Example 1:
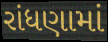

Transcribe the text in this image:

રાંધણામાં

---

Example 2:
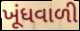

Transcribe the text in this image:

ખૂંધવાળી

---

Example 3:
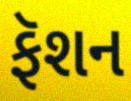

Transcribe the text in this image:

ફૅશન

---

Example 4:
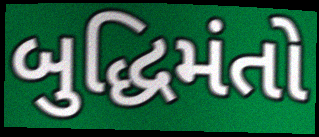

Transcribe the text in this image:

બુદ્ધિમંતો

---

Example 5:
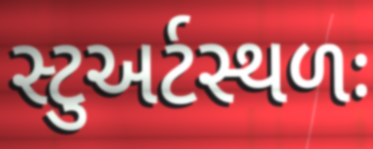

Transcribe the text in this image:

સ્ટુઅર્ટસ્થળઃ